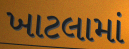
ખાટલામાં